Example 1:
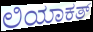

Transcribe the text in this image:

ಲಿಯಾಕತ್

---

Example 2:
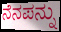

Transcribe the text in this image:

ನೆನಪನ್ನು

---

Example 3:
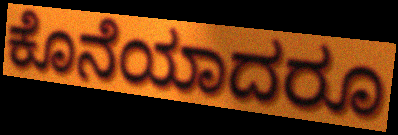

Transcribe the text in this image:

ಕೊನೆಯಾದರೂ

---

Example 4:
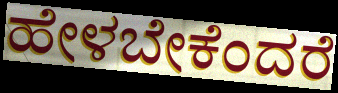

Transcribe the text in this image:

ಹೇಳಬೇಕೆಂದರೆ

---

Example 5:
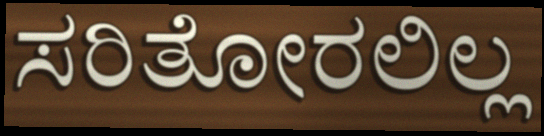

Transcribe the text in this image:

ಸರಿತೋರಲಿಲ್ಲ